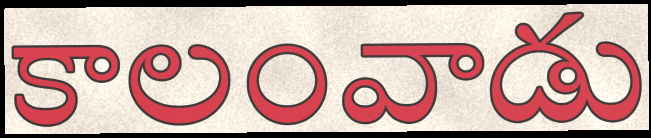
కాలంవాడు